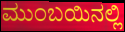
ಮುಂಬಯಿನಲ್ಲಿ